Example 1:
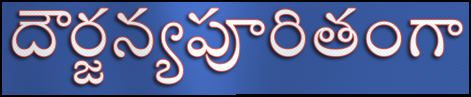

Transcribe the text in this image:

దౌర్జన్యపూరితంగా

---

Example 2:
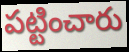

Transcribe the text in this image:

పట్టించారు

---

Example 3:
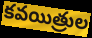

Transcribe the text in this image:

కవయిత్రుల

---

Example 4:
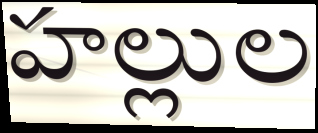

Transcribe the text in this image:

హల్లుల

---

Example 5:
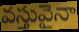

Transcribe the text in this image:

వస్తువైనా